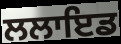
ਲਲਾਇਡ